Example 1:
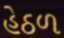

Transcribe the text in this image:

હેઠળ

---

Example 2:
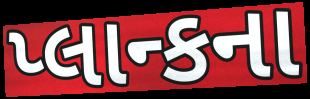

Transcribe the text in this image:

પ્લાન્કના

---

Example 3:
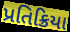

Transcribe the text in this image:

પ્રતિક્રિયા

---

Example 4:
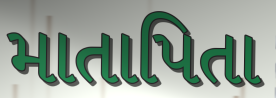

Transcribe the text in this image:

માતાપિતા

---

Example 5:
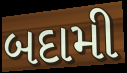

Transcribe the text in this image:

બદામી